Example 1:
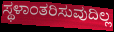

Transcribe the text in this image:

ಸ್ಥಳಾಂತರಿಸುವುದಿಲ್ಲ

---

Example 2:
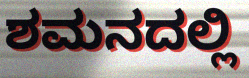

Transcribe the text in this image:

ಶಮನದಲ್ಲಿ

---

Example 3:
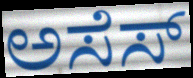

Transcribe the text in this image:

ಅಸೆಸ್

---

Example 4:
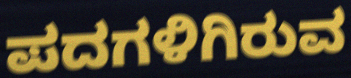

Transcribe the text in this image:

ಪದಗಳಿಗಿರುವ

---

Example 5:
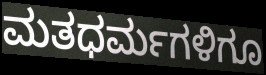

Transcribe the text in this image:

ಮತಧರ್ಮಗಳಿಗೂ